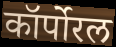
कॉर्पोरल